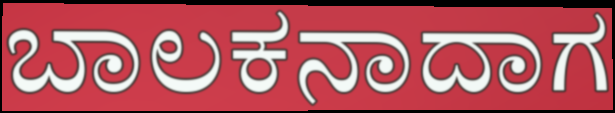
ಬಾಲಕನಾದಾಗ